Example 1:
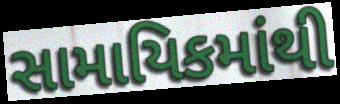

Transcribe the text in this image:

સામાયિકમાંથી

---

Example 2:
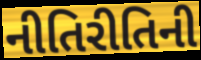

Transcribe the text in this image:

નીતિરીતિની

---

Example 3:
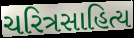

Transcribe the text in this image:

ચરિત્રસાહિત્ય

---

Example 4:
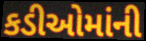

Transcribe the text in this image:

કડીઓમાંની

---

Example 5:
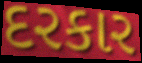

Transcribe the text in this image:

દરકાર